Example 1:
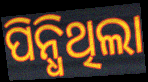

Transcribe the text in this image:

ପିନ୍ଧିଥିଲା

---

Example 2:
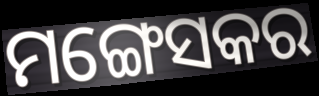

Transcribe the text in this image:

ମଙ୍ଗେସକର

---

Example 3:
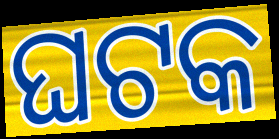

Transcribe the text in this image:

ଘଟକ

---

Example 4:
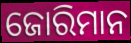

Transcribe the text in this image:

ଜୋରିମାନ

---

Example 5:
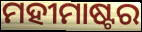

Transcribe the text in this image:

ମହୀମାଷ୍ଟର